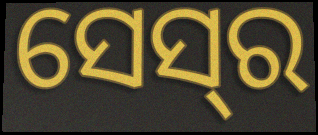
ସେସ୍‌ର